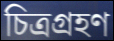
চিত্ৰগ্ৰহণ